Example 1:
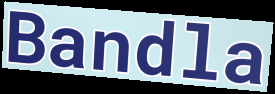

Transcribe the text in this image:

Bandla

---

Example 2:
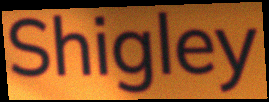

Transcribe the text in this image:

Shigley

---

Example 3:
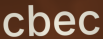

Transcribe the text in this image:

cbec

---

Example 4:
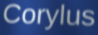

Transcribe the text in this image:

Corylus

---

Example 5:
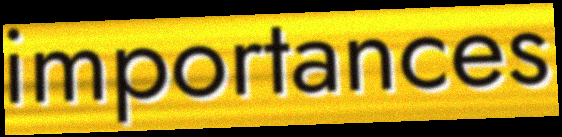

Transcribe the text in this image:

importances